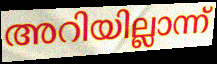
അറിയില്ലാന്ന്